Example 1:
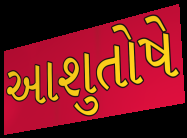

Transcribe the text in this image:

આશુતોષે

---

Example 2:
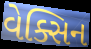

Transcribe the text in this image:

વેક્સિન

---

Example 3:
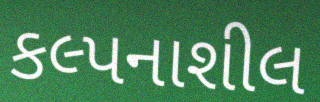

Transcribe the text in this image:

કલ્પનાશીલ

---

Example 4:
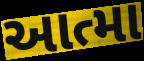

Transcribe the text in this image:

આત્મા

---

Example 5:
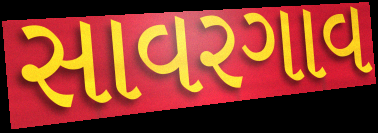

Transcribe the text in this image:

સાવરગાવ